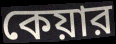
কেয়ার